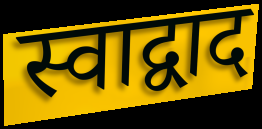
स्वाद्वाद